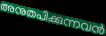
അനുതപിക്കുന്നവൻ